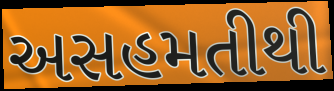
અસહમતીથી